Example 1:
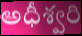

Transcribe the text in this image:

అధీశ్వరి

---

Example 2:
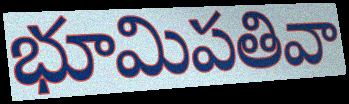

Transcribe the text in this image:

భూమిపతివా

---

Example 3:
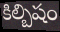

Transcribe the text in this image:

కిల్బిషం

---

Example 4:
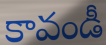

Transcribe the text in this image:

కావండీ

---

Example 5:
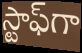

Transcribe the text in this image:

స్టాఫ్‌గా